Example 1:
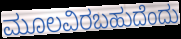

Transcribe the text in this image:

ಮೂಲವಿರಬಹುದೆಂದು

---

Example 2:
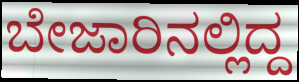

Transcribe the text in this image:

ಬೇಜಾರಿನಲ್ಲಿದ್ದ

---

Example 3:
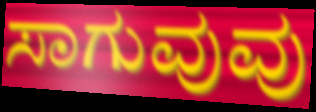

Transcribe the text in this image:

ಸಾಗುವುವು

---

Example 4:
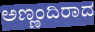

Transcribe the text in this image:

ಅಣ್ಣಂದಿರಾದ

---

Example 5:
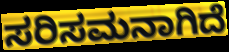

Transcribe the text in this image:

ಸರಿಸಮನಾಗಿದೆ